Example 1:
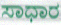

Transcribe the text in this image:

ಸಾಧಾರ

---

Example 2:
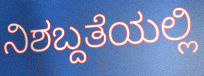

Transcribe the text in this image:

ನಿಶಬ್ದತೆಯಲ್ಲಿ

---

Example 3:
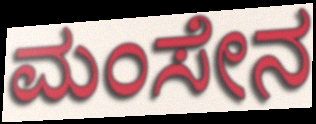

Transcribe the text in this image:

ಮಂಸೇನ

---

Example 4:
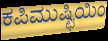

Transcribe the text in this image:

ಕಪಿಮುಷ್ಟಿಯಿಂ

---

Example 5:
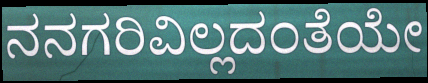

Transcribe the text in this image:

ನನಗರಿವಿಲ್ಲದಂತೆಯೇ